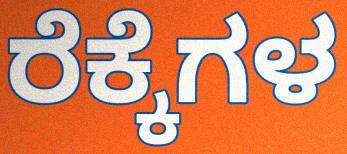
ರೆಕ್ಕೆಗಳ